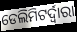
ଡେଲିମିଟର୍ଦ୍ୱାରା